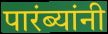
पारंब्यांनी